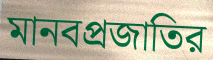
মানবপ্রজাতির